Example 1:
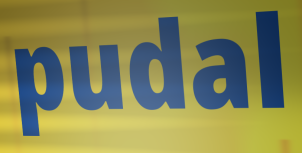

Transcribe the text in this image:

pudal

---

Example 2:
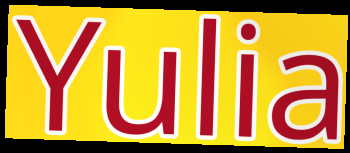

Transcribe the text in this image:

Yulia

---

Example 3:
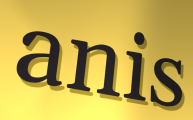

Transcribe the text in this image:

anis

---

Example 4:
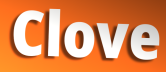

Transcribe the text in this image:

Clove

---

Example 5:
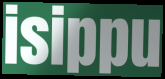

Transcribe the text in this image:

isippu